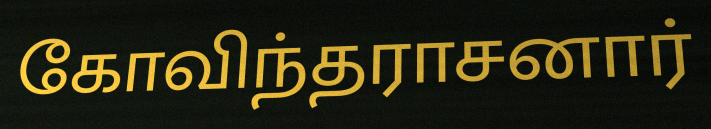
கோவிந்தராசனார்